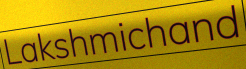
Lakshmichand